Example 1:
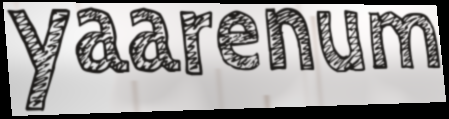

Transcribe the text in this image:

yaarenum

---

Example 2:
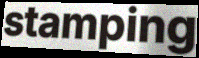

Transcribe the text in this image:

stamping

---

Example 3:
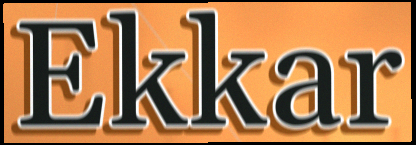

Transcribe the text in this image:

Ekkar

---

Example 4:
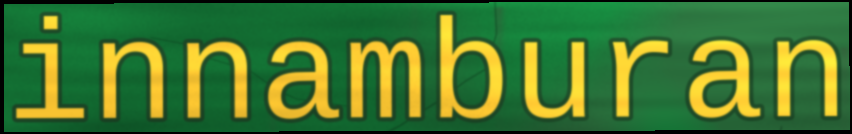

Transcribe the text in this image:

innamburan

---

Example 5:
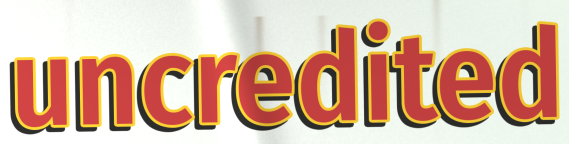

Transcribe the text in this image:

uncredited